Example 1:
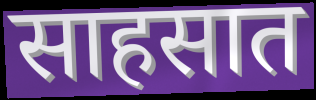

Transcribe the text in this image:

साहसात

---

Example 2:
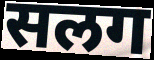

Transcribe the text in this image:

सलग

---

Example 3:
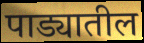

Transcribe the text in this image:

पाड्यातील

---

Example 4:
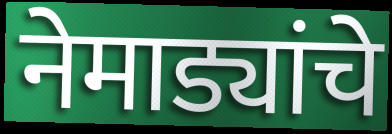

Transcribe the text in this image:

नेमाड्यांचे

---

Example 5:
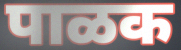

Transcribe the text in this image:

पाळक